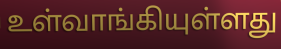
உள்வாங்கியுள்ளது